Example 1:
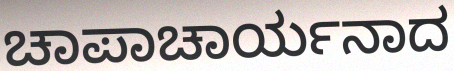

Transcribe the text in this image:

ಚಾಪಾಚಾರ್ಯನಾದ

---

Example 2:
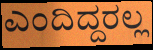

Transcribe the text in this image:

ಎಂದಿದ್ದರಲ್ಲ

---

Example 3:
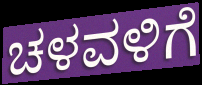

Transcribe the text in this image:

ಚಳವಳಿಗೆ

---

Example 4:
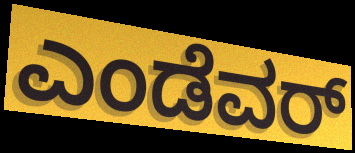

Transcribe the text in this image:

ಎಂಡೆವರ್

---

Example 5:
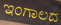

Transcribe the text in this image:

ಇಂಗಾಲದ